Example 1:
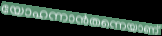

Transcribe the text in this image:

യോഹന്നാൻതന്നെയാണ്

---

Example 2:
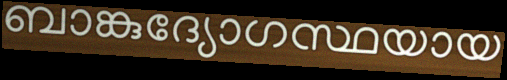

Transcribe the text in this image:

ബാങ്കുദ്യോഗസ്ഥയായ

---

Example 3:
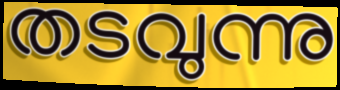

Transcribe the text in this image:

തടവുന്നു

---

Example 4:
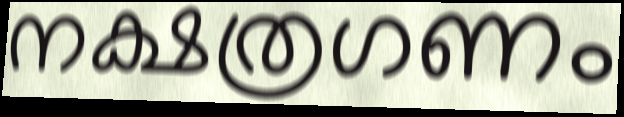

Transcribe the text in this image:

നക്ഷത്രഗണം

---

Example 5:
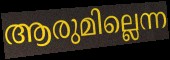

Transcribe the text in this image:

ആരുമില്ലെന്ന